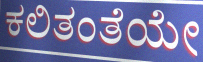
ಕಲಿತಂತೆಯೇ